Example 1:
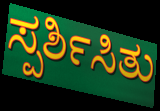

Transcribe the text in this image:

ಸ್ಪರ್ಶಿಸಿತು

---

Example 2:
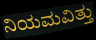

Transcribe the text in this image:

ನಿಯಮವಿತ್ತು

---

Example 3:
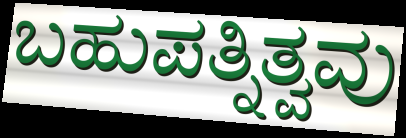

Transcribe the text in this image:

ಬಹುಪತ್ನಿತ್ವವು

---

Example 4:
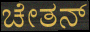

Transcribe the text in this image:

ಚೇತನ್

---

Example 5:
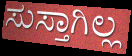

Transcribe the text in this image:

ಸುಸ್ತಾಗಿಲ್ಲ